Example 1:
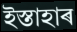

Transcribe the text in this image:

ইস্তাহাৰ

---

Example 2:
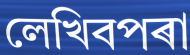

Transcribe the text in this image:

লেখিবপৰা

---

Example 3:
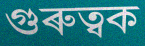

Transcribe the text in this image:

গুৰুত্বক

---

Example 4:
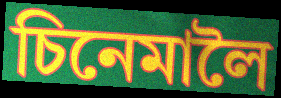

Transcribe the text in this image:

চিনেমালৈ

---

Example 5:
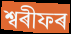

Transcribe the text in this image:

শ্বৰীফৰ